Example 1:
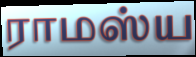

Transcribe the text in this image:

ராமஸ்ய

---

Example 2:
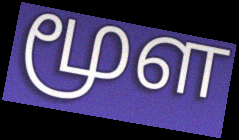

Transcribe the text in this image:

மூள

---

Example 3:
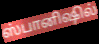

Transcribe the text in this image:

ஸ்பானிஷில்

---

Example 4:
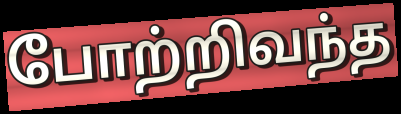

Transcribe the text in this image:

போற்றிவந்த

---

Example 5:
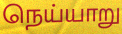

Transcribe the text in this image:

நெய்யாறு